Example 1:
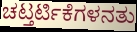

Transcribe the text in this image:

ಚಟ್ತರ್ಟಿಕೆಗಳನತು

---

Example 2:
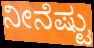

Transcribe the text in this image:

ನೀನೆಷ್ಟು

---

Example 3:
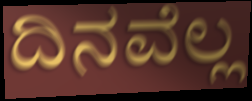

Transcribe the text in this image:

ದಿನವೆಲ್ಲ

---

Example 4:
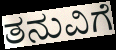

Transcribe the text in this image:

ತನುವಿಗೆ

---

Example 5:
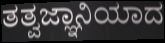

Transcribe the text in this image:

ತತ್ವಜ್ಞಾನಿಯಾದ